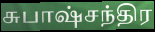
சுபாஷ்சந்திர